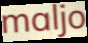
maljo